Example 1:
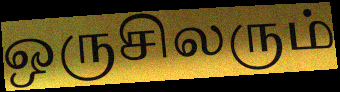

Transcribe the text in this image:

ஒருசிலரும்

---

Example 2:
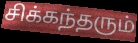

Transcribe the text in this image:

சிக்கந்தரும்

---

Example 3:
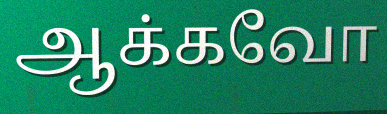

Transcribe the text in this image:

ஆக்கவோ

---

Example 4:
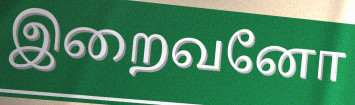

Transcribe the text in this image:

இறைவனோ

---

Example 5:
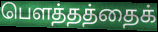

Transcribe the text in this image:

பௌத்தத்தைக்